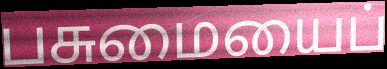
பசுமையைப்